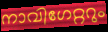
നാവിഗേറ്ററും